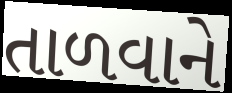
તાળવાને